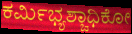
ಕರ್ಮಿಭ್ಯಶ್ಚಾಧಿಕೋ